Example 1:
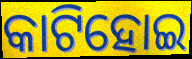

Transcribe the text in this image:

କାଟିହୋଇ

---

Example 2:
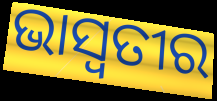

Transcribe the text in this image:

ଭାସ୍ୱତୀର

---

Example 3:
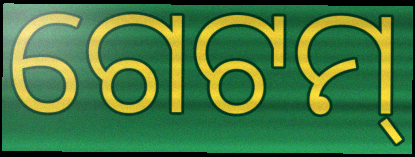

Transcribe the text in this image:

ଗେଟମ୍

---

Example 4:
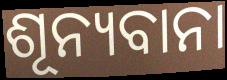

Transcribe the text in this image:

ଶୂନ୍ୟବାନା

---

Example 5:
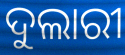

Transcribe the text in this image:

ଦୁଲାରୀ